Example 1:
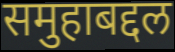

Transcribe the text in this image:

समुहाबद्दल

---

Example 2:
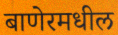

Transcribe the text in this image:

बाणेरमधील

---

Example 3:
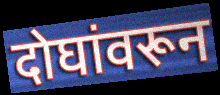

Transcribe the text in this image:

दोघांवरून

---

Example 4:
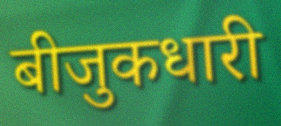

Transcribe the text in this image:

बीजुकधारी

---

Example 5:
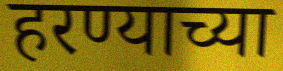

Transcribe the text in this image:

हरण्याच्या